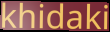
khidaki